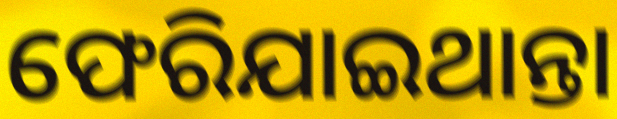
ଫେରିଯାଇଥାନ୍ତା